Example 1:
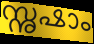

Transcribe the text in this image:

സ്നുഷാം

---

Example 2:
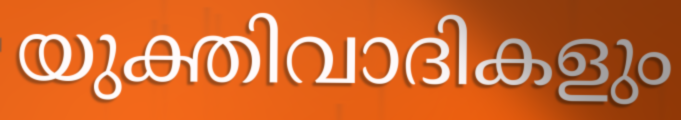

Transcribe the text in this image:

യുക്തിവാദികളും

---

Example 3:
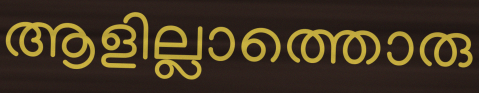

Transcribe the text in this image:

ആളില്ലാത്തൊരു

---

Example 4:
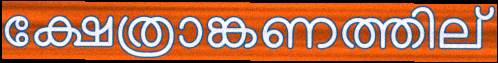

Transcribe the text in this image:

ക്ഷേത്രാങ്കണത്തില്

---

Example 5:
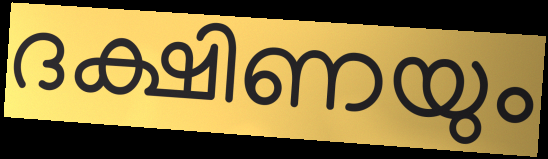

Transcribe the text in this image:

ദക്ഷിണയും